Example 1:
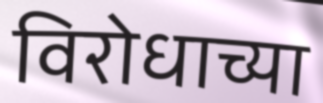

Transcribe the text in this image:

विरोधाच्या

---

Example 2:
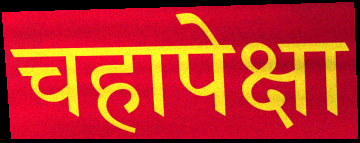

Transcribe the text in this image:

चहापेक्षा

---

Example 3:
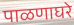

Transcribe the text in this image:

पाळणाघरे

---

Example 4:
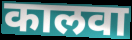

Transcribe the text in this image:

कालवा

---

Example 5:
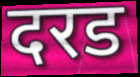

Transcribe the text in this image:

दरड